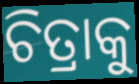
ଚିତ୍ରାକୁ